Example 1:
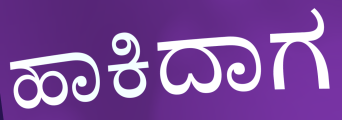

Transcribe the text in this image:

ಹಾಕಿದಾಗ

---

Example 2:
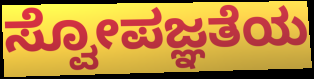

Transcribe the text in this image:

ಸ್ವೋಪಜ್ಞತೆಯ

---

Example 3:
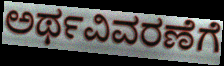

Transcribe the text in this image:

ಅರ್ಥವಿವರಣೆಗೆ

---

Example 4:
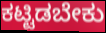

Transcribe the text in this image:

ಕಟ್ಟಿಡಬೇಕು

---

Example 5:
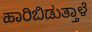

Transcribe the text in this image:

ಹಾರಿಬಿಡುತ್ತಾಳೆ